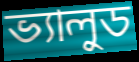
ভ্যালুড